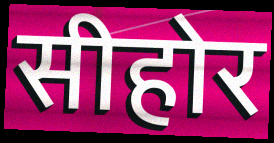
सीहोर